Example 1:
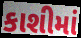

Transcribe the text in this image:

કાશીમાં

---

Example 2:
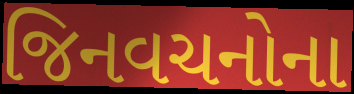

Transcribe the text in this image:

જિનવચનોના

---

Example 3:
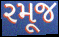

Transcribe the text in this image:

રમૂજ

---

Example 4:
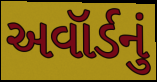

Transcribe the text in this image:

અવૉર્ડનું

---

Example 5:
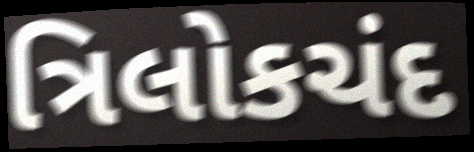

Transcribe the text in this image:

ત્રિલોકચંદ